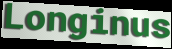
Longinus